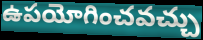
ఉపయోగించవచ్చు